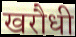
खरौधी